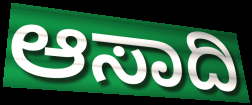
ಆಸಾದಿ